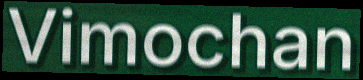
Vimochan